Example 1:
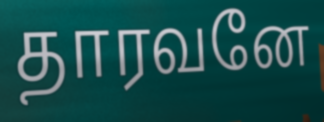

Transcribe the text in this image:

தாரவனே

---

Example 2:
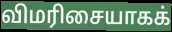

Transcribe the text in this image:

விமரிசையாகக்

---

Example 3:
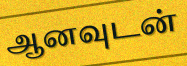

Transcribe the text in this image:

ஆனவுடன்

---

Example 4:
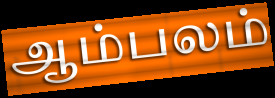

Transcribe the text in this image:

ஆம்பலம்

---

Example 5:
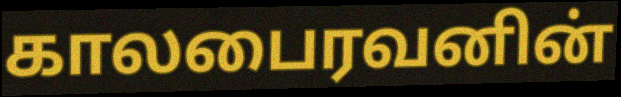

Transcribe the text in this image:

காலபைரவனின்